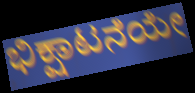
ಭಿಕ್ಷಾಟನೆಯೇ